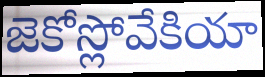
జెకోస్లోవేకియా